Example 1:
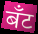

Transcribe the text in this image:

बँट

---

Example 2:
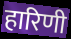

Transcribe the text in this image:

हारिणी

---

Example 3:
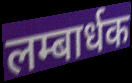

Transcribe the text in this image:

लम्बार्धक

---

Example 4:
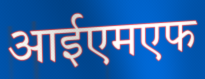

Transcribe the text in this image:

आईएमएफ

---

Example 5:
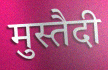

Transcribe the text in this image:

मुस्तैदी